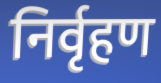
निर्वृहण